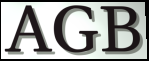
AGB